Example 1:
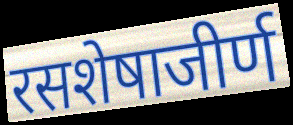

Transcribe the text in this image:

रसशेषाजीर्ण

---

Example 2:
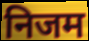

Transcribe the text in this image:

निजम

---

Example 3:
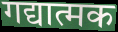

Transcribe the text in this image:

गद्यात्मक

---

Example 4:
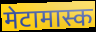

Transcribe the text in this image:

मेटामास्क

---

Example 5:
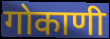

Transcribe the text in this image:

गोकाणी